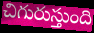
చిగురుస్తుంది